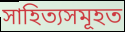
সাহিত্যসমূহত